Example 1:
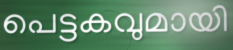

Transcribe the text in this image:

പെട്ടകവുമായി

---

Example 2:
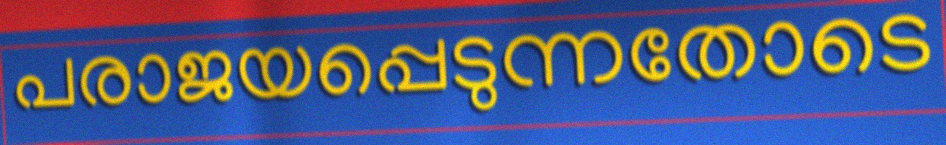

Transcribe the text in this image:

പരാജയപ്പെടുന്നതോടെ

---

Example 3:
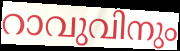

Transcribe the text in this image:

റാവുവിനും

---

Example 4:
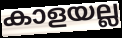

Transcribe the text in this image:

കാളയല്ല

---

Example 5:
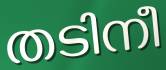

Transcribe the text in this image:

തടിനീ